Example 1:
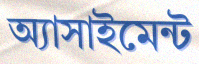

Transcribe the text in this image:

অ্যাসাইমেন্ট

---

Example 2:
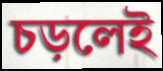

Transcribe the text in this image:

চড়লেই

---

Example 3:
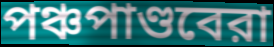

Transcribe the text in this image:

পঞ্চপাণ্ডবেরা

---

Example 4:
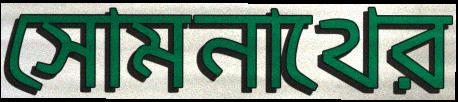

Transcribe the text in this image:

সোমনাথের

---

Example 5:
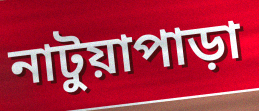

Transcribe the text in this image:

নাটুয়াপাড়া